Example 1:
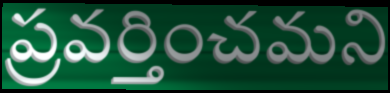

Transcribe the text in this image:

ప్రవర్తించమని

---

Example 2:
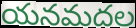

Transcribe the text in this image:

యనమదల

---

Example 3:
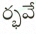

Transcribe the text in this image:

ర్భవే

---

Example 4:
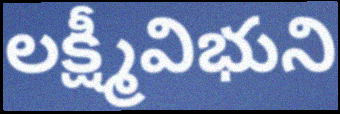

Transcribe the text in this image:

లక్ష్మీవిభుని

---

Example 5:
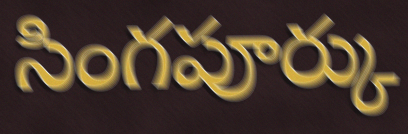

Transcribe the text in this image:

సింగపూర్కు